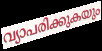
വ്യാപരിക്കുകയും